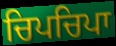
ਚਿਪਚਿਪਾ